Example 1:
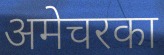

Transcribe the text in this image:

अमेचरका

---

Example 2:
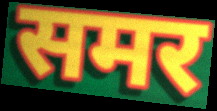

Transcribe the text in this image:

समर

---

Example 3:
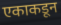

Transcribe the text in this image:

एकाकडून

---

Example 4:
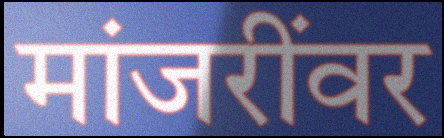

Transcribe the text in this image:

मांजरींवर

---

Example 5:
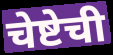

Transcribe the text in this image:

चेष्टेची